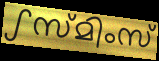
ഽസ്മിംസ്